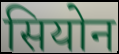
सियोन